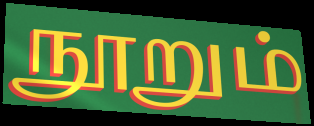
நூறும்